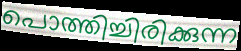
പൊത്തിച്ചിരിക്കുന്ന